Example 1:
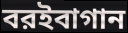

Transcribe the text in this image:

বরইবাগান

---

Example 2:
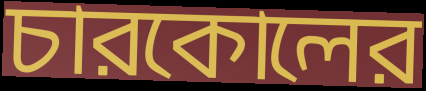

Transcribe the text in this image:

চারকোলের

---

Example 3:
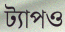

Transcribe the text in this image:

ট্যাপও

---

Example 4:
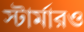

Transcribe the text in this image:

স্টার্মারও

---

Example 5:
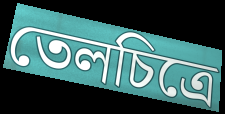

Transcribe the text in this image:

তেলচিত্রে